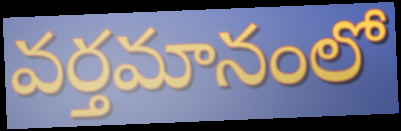
వర్తమానంలో